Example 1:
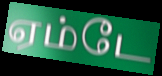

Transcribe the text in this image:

ஏம்டே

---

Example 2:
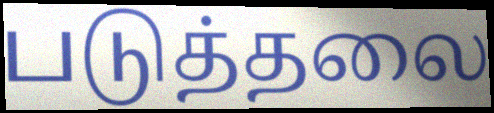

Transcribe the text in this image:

படுத்தலை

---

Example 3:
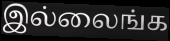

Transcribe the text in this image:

இல்லைங்க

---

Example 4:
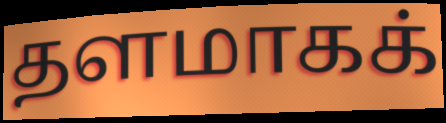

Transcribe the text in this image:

தளமாகக்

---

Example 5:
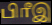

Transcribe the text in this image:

பிரீஇ